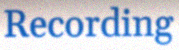
Recording